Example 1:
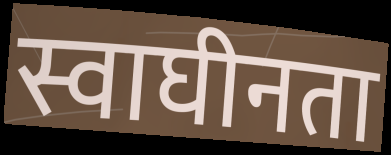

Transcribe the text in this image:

स्वाघीनता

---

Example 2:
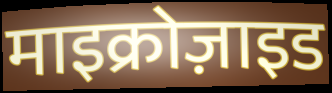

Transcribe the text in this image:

माइक्रोज़ाइड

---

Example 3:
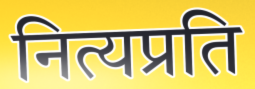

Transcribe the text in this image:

नित्यप्रति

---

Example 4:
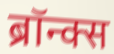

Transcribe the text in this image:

ब्रॉन्क्स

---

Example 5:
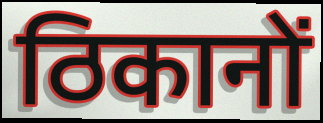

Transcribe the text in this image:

ठिकानों